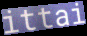
ittai